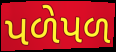
પળેપળ